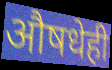
औषधेही